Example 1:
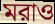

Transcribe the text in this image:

মরাও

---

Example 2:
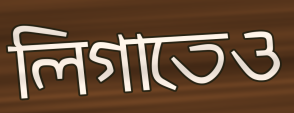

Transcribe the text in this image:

লিগাতেও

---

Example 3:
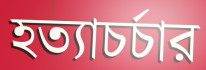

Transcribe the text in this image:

হত্যাচর্চার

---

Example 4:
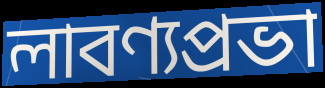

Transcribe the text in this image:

লাবণ্যপ্রভা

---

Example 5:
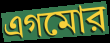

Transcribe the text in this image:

এগমোর